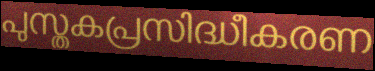
പുസ്തകപ്രസിദ്ധീകരണ